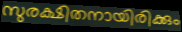
സുരക്ഷിതനായിരിക്കും